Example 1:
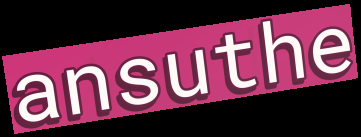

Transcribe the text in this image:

ansuthe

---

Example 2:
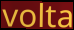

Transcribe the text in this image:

volta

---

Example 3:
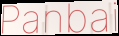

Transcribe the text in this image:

Panbai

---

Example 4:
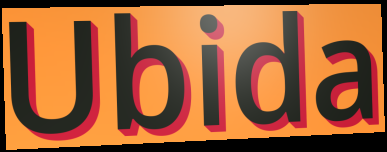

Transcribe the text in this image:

Ubida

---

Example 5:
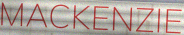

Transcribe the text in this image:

MACKENZIE